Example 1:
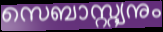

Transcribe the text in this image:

സെബാസ്റ്റ്യനും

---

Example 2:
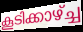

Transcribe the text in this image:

കൂടിക്കാഴ്ച്ച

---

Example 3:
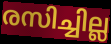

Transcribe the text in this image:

രസിച്ചില്ല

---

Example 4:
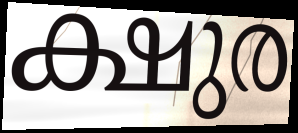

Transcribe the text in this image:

ക്ഷുര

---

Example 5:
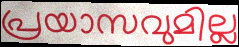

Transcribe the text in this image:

പ്രയാസവുമില്ല